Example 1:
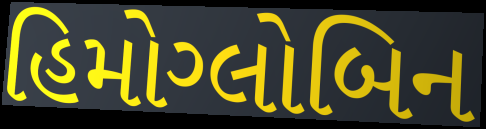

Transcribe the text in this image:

હિમોગ્લોબિન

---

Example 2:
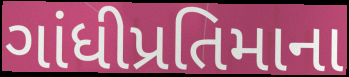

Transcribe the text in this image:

ગાંધીપ્રતિમાના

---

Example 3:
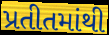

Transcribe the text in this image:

પ્રતીતમાંથી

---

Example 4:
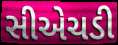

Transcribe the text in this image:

સીએચડી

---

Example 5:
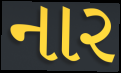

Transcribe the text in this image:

નાર